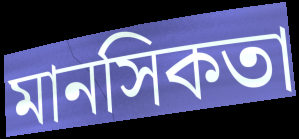
মানসিকতা